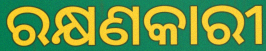
ରକ୍ଷଣକାରୀ